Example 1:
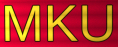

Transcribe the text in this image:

MKU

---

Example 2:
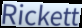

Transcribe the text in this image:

Rickett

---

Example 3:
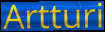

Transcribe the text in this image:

Artturi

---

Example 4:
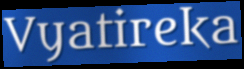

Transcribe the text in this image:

Vyatireka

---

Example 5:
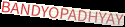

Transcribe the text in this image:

BANDYOPADHYAY